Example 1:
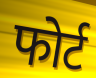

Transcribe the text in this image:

फोर्ट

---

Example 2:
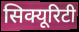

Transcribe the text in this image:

सिक्यूरिटी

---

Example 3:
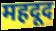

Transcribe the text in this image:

महदूद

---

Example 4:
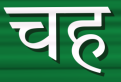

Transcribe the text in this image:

चह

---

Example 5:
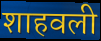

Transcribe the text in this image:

शाहवली